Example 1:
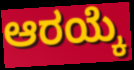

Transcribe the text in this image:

ಆರಯ್ಕೆ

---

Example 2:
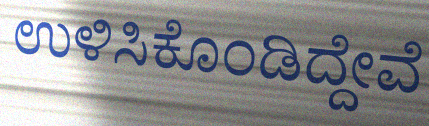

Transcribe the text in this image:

ಉಳಿಸಿಕೊಂಡಿದ್ದೇವೆ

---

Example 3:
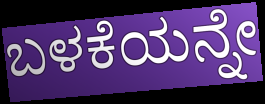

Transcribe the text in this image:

ಬಳಕೆಯನ್ನೇ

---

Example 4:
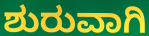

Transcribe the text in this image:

ಶುರುವಾಗಿ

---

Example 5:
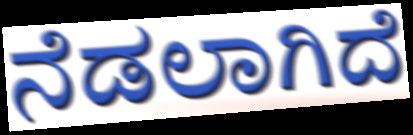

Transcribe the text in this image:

ನೆಡಲಾಗಿದೆ